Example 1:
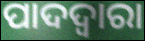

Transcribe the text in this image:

ପାଦଦ୍ଵାରା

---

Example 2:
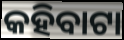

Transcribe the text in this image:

କହିବାଟା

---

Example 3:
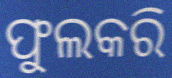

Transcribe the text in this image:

ଫୁଲକରି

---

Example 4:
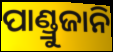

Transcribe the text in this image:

ପାଣ୍ଡ୍ରୁଜାନି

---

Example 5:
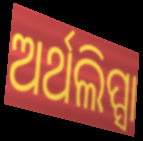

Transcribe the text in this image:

ଅର୍ଥଲିପ୍ସା